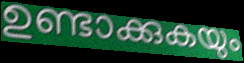
ഉണ്ടാക്കുകയും